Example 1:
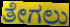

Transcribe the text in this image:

ತೇಗಲು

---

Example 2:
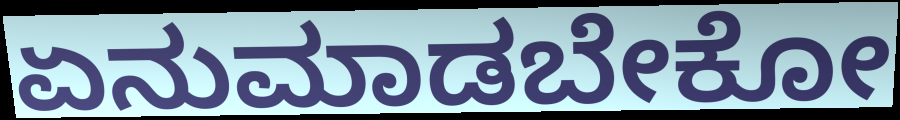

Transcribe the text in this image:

ಏನುಮಾಡಬೇಕೋ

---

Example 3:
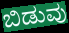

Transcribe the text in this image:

ಬಿಡುವು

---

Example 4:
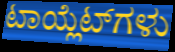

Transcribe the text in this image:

ಟಾಯ್ಲೆಟ್‌ಗಳು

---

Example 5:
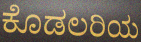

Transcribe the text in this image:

ಕೊಡಲರಿಯ